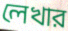
লেখার